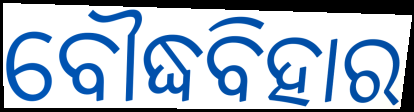
ବୌଦ୍ଧବିହାର